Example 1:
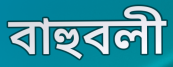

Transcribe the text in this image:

বাহুবলী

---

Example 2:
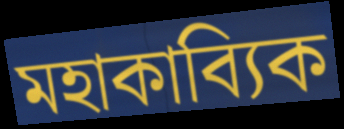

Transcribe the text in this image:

মহাকাব্যিক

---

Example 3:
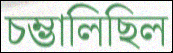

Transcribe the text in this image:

চম্ভালিছিল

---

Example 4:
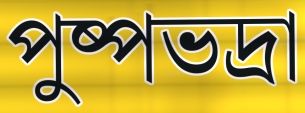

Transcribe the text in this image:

পুষ্পভদ্ৰা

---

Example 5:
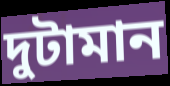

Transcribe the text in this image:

দুটামান